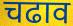
चढाव